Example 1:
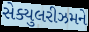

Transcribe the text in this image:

સેક્યુલરીઝમને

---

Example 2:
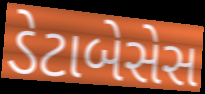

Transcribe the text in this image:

ડેટાબેસેસ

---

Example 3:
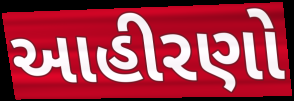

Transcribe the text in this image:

આહીરણો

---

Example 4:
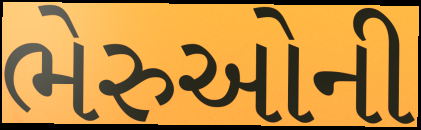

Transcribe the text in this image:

ભેરુઓની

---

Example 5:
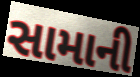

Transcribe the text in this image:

સામાની